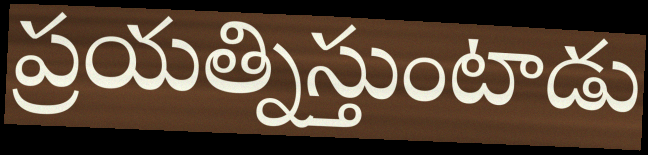
ప్రయత్నిస్తుంటాడు